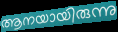
ആനയായിരുന്നു